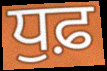
ਧੁਫ਼